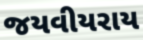
જયવીયરાય